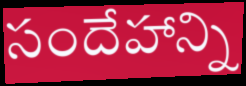
సందేహాన్ని